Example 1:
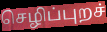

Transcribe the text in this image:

செழிப்புறச்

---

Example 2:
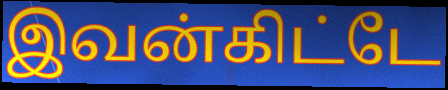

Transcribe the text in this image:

இவன்கிட்டே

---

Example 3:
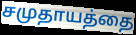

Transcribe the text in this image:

சமுதாயத்தை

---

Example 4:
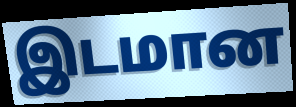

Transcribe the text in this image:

இடமான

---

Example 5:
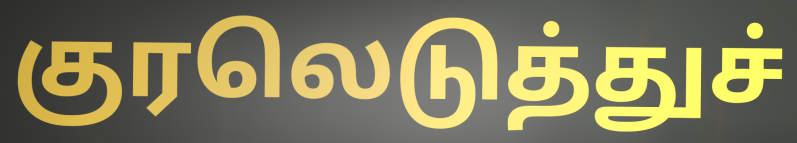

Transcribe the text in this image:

குரலெடுத்துச்